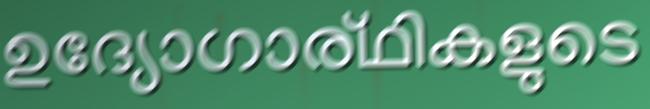
ഉദ്യോഗാര്ഥികളുടെ